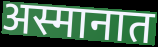
अस्मानात